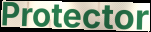
Protector